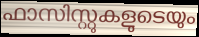
ഫാസിസ്റ്റുകളുടെയും